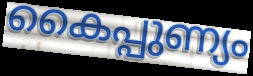
കൈപ്പുണ്യം